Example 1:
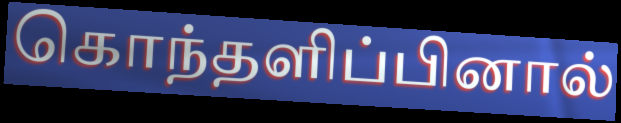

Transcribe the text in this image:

கொந்தளிப்பினால்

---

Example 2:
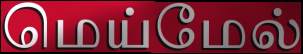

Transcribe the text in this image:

மெய்மேல்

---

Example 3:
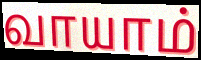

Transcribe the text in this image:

வாயாம்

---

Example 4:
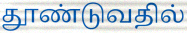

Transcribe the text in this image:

தூண்டுவதில்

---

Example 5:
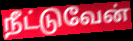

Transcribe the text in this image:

நீட்டுவேன்